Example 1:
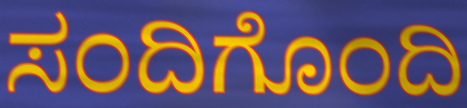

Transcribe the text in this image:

ಸಂದಿಗೊಂದಿ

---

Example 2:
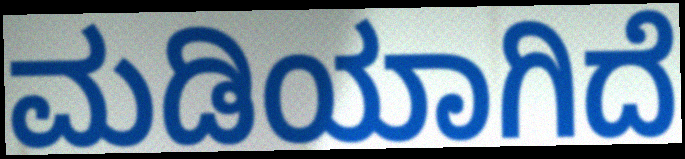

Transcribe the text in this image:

ಮಡಿಯಾಗಿದೆ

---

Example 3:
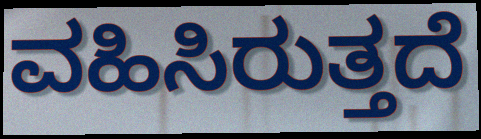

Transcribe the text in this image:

ವಹಿಸಿರುತ್ತದೆ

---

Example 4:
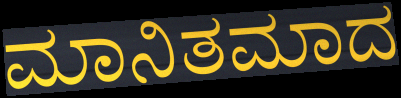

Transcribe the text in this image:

ಮಾನಿತಮಾದ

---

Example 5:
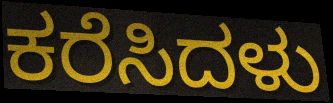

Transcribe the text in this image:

ಕರೆಸಿದಳು